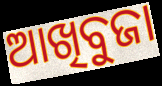
ଆଖିବୁଜା